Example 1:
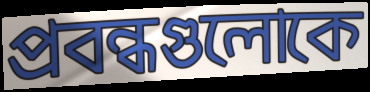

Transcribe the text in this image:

প্রবন্ধগুলোকে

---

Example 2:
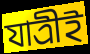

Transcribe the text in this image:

যাত্রীই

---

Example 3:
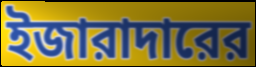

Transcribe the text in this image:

ইজারাদারের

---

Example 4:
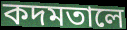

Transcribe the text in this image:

কদমতালে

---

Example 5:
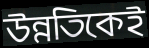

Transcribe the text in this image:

উন্নতিকেই